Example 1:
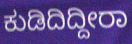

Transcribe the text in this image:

ಕುಡಿದಿದ್ದೀರಾ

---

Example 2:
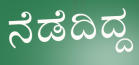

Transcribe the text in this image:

ನೆಡೆದಿದ್ದ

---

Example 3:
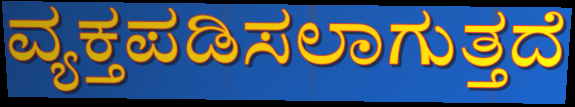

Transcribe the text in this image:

ವ್ಯಕ್ತಪಡಿಸಲಾಗುತ್ತದೆ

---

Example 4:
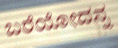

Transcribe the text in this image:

ಬರೆಯೋದನ್ನ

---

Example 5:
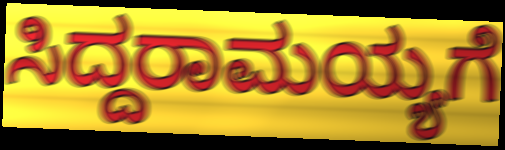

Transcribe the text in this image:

ಸಿದ್ದರಾಮಯ್ಯಗೆ